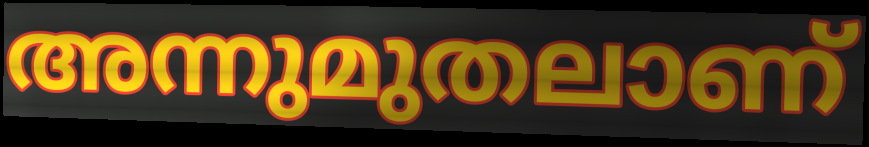
അന്നുമുതലാണ്